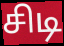
சிடி